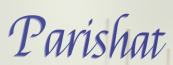
Parishat